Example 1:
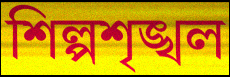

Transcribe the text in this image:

শিল্পশৃঙ্খল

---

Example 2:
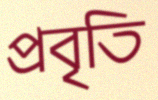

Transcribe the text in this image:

প্রবৃতি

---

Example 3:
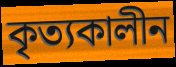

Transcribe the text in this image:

কৃত্যকালীন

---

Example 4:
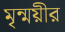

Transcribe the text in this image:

মৃন্ময়ীর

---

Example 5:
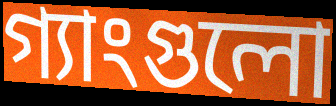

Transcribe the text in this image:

গ্যাংগুলো